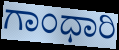
ಗಾಂಧಾರಿ